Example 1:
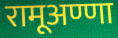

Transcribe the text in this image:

रामूअण्णा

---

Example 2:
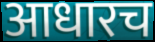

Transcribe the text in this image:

आधारच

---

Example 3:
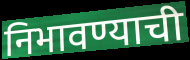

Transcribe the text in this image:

निभावण्याची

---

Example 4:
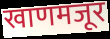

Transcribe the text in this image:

खाणमजूर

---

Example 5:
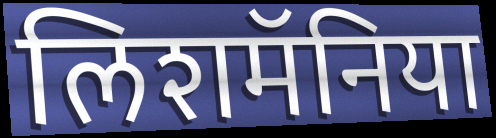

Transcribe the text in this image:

लिशमॅनिया